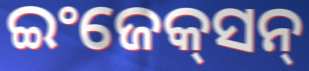
ଇଂଜେକ୍‌ସନ୍